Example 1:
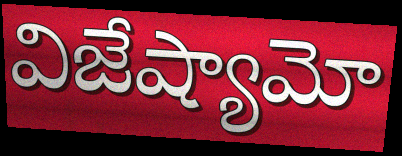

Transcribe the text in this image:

విజేష్యామో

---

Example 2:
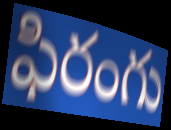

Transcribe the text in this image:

ఫిరంగు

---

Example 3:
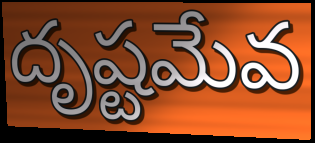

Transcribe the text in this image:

దృష్టమేవ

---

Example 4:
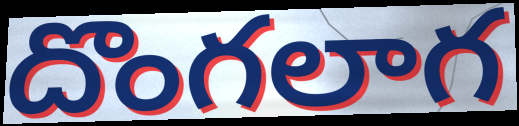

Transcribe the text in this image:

దొంగలాగ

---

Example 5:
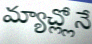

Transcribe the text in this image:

మ్యాచ్ల్లోనే